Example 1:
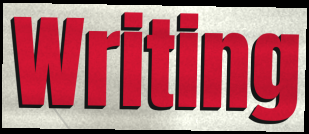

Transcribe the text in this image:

Writing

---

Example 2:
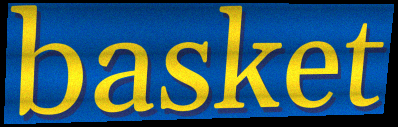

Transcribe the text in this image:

basket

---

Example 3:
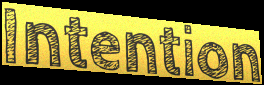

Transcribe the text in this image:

Intention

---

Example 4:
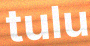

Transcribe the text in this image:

tulu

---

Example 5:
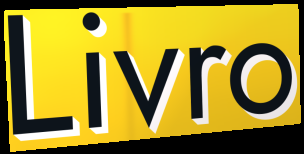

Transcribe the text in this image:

Livro